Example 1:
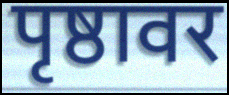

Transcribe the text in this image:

पृष्ठावर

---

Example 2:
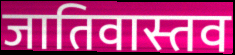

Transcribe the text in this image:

जातिवास्तव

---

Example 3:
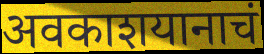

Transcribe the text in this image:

अवकाशयानाचं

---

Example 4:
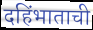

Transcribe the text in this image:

दहिंभाताची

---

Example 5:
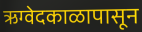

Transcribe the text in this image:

ऋग्वेदकाळापासून